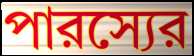
পারস্যের